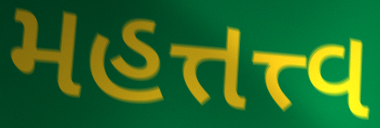
મહત્તત્ત્વ